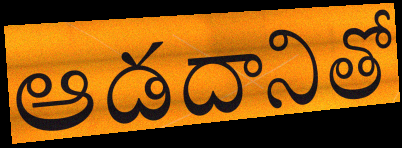
ఆడదానితో